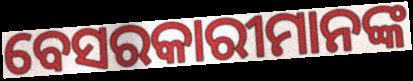
ବେସରକାରୀମାନଙ୍କ